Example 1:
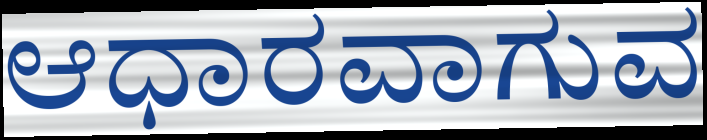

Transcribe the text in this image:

ಆಧಾರವಾಗುವ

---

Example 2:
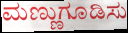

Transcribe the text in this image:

ಮಣ್ಣುಗೂಡಿಸು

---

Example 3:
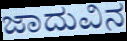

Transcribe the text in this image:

ಜಾದುವಿನ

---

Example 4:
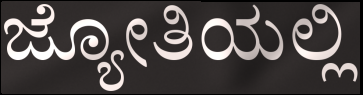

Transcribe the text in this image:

ಜ್ಯೋತಿಯಲ್ಲಿ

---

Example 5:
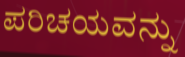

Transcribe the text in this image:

ಪರಿಚಯವನ್ನು